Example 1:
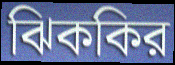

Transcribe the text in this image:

ঝিককির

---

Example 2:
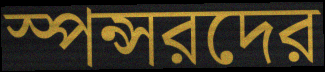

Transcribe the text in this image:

স্পন্সরদের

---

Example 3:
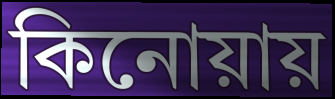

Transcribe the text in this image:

কিনোয়ায়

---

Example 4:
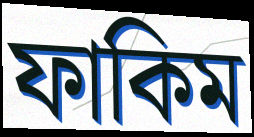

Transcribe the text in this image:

ফাকিম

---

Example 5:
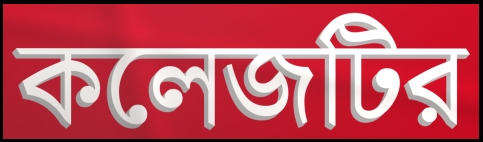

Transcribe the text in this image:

কলেজটির